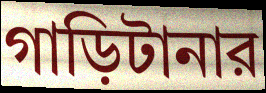
গাড়িটানার